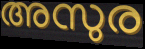
അസുര